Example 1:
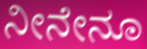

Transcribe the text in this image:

ನೀನೇನೂ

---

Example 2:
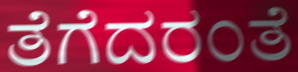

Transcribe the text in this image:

ತೆಗೆದರಂತೆ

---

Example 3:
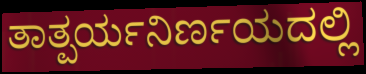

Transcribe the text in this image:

ತಾತ್ಪರ್ಯನಿರ್ಣಯದಲ್ಲಿ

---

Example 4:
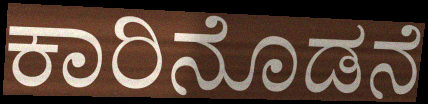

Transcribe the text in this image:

ಕಾರಿನೊಡನೆ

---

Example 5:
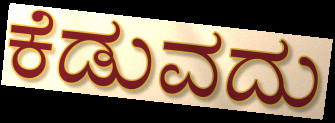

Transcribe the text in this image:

ಕೆಡುವದು